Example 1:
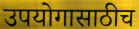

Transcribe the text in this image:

उपयोगासाठीच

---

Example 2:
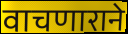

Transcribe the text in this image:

वाचणाराने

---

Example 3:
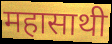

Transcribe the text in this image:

महासाथी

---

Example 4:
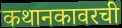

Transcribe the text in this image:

कथानकावरची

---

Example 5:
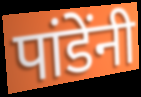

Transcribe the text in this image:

पांडेंनी